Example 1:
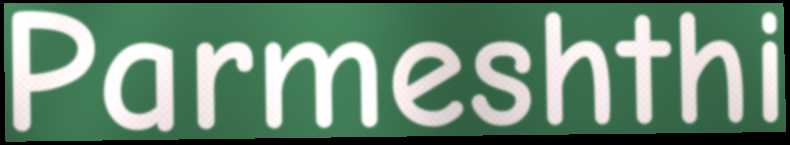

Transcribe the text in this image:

Parmeshthi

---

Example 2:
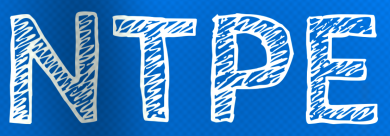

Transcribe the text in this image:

NTPE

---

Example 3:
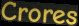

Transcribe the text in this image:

Crores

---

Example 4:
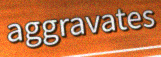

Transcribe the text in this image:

aggravates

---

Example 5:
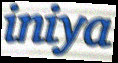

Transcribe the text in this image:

iniya